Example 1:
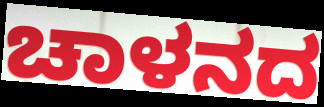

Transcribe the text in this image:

ಚಾಳನದ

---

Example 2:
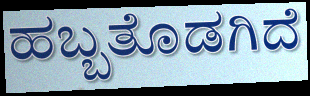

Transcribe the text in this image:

ಹಬ್ಬತೊಡಗಿದೆ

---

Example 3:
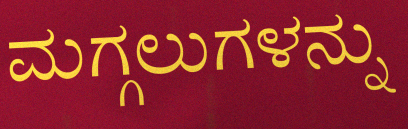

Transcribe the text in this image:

ಮಗ್ಗಲುಗಳನ್ನು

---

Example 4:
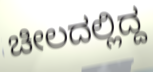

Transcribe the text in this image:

ಚೀಲದಲ್ಲಿದ್ದ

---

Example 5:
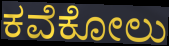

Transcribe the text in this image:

ಕವೆಕೋಲು